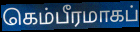
கெம்பீரமாகப்